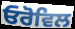
ਓਰੋਵਿਲ